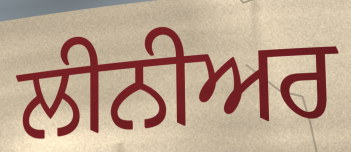
ਲੀਨੀਅਰ